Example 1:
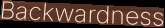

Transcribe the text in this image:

Backwardness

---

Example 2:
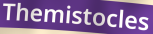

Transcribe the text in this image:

Themistocles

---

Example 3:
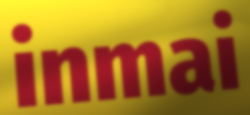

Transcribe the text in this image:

inmai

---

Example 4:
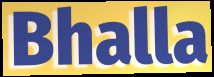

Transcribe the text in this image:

Bhalla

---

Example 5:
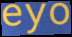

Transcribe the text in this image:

eyo